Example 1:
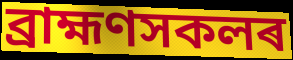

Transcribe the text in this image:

ব্ৰাহ্মণসকলৰ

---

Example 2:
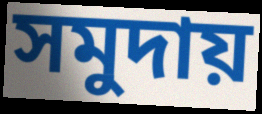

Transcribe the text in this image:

সমুদায়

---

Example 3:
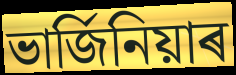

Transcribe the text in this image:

ভাৰ্জিনিয়াৰ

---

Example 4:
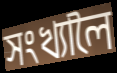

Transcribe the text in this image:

সংখ্যালৈ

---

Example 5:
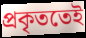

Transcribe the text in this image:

প্ৰকৃততেই